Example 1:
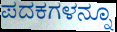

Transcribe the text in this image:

ಪದಕಗಳನ್ನೂ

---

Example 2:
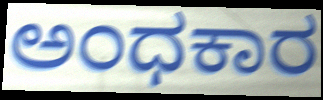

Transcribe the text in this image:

ಅಂಧಕಾರ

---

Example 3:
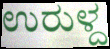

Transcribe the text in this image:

ಉರುಳ್ದ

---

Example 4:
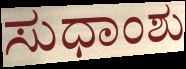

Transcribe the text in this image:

ಸುಧಾಂಶು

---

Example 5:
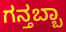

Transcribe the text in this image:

ಗನ್ತಬ್ಬಾ